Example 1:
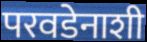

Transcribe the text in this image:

परवडेनाशी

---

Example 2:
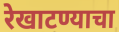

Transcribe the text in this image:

रेखाटण्याचा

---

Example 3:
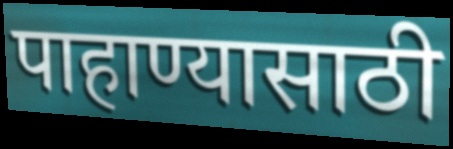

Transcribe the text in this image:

पाहाण्यासाठी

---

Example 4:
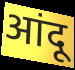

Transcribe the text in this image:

आंदू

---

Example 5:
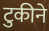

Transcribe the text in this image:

टुकीने